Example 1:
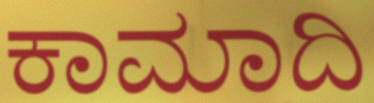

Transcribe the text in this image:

ಕಾಮಾದಿ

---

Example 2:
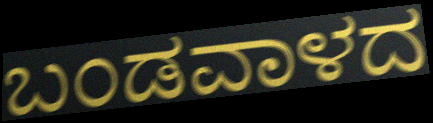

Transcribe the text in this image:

ಬಂಡವಾಳದ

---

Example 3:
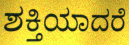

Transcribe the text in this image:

ಶಕ್ತಿಯಾದರೆ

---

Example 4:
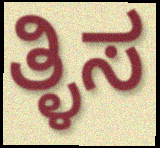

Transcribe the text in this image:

ತ್ಳಿಸ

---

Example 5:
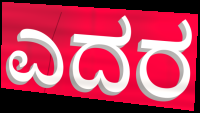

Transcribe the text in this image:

ಎದರ